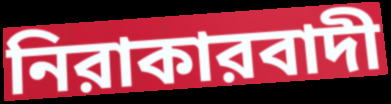
নিরাকারবাদী